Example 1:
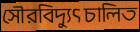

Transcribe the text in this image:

সৌরবিদ্যুৎচালিত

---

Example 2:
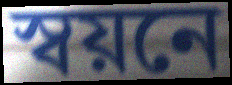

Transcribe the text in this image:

স্বয়নে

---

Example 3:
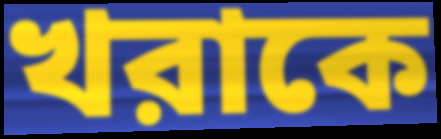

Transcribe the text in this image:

খরাকে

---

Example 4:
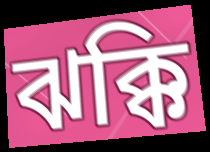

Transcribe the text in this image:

ঝক্কি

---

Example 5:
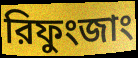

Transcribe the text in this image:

রিফুংজাং